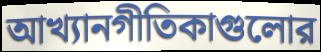
আখ্যানগীতিকাগুলোর